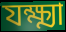
যক্ষ্মা